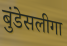
बुंडेसलीगा